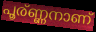
പൂര്ണ്ണനാണ്